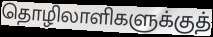
தொழிலாளிகளுக்குத்